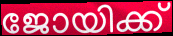
ജോയിക്ക്